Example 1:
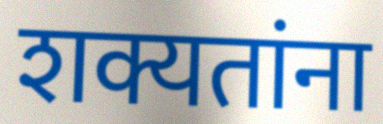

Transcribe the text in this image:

शक्यतांना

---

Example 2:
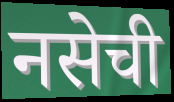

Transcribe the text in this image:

नसेची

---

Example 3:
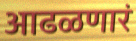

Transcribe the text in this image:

आढळणारं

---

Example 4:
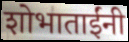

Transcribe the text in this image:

शोभाताईंनी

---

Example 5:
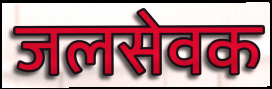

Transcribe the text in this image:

जलसेवक